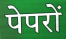
पेपरों